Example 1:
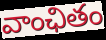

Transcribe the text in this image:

వాంఛితం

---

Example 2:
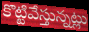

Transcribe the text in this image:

కొట్టివేస్తున్నట్లు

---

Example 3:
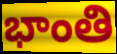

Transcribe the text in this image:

భాంతి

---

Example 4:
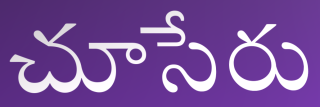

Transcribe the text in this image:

చూసేరు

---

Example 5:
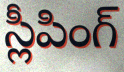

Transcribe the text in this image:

స్లీపింగ్